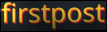
firstpost